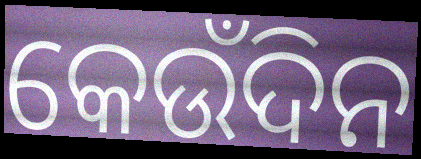
କେଉଁଦିନ